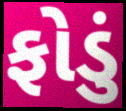
ફોડું